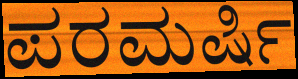
ಪರಮರ್ಷಿ